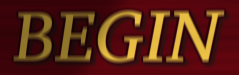
BEGIN